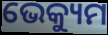
ଭେକ୍ୟୁମ